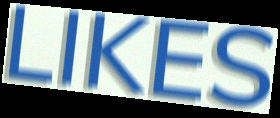
LIKES